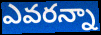
ఎవరన్నా